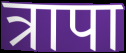
त्रापा